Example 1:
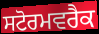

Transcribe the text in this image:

ਸਟੋਰਮਵਰੈਕ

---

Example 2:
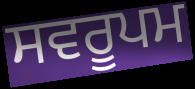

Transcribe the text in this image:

ਸਵਰੂਪਮ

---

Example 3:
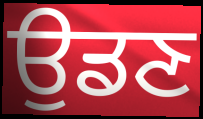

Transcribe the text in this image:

ਉਡਣ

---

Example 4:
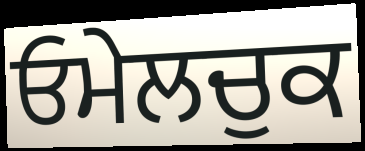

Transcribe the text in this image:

ਓਮੇਲਚੁਕ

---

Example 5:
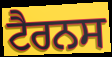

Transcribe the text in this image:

ਟੈਰਨਸ